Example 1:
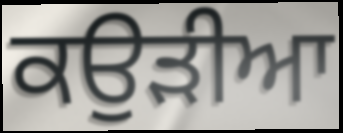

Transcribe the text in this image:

ਕਉੜੀਆ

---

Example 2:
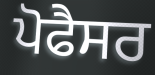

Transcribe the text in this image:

ਪੋਫੈਸਰ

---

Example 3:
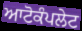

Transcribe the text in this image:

ਆਟੋਕੰਪਲੇਟ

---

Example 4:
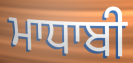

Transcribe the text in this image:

ਮਾਧਾਬੀ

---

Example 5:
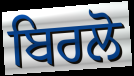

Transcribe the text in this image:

ਬਿਰਲੋ